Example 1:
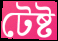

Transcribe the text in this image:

টেষ্ট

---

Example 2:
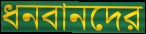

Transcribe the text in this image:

ধনবানদের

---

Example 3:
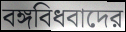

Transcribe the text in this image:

বঙ্গবিধবাদের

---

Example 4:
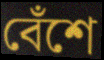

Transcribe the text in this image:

বেঁশে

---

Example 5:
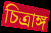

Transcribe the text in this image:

চিত্রাঙ্গ